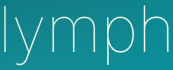
lymph